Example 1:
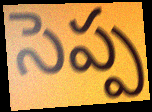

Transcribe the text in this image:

సెప్ప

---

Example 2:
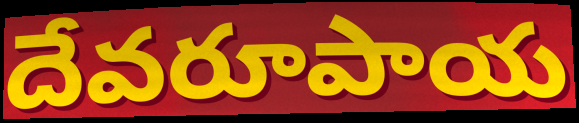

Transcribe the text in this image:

దేవరూపాయ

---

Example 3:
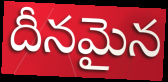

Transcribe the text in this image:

దీనమైన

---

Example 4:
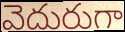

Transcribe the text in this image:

వెదురుగా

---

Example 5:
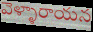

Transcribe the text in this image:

వెళ్ళారాయన